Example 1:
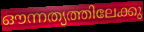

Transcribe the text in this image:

ഔന്നത്യത്തിലേക്കു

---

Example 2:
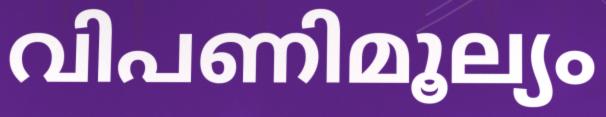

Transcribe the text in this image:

വിപണിമൂല്യം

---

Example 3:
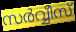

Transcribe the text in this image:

സർവ്വീസ്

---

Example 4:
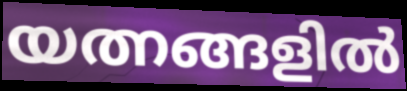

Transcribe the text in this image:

യത്നങ്ങളിൽ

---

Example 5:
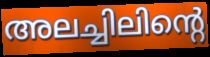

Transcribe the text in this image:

അലച്ചിലിന്റെ